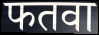
फतवा